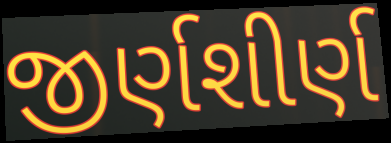
જીર્ણશીર્ણ